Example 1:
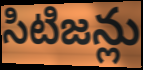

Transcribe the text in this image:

సిటిజన్లు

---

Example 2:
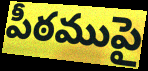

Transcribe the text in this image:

పీఠముపై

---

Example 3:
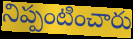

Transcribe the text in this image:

నిప్పంటించారు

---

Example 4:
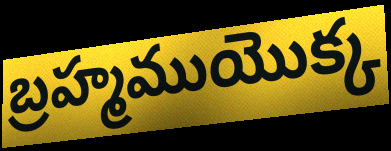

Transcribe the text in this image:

బ్రహ్మముయొక్క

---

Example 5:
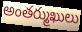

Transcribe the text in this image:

అంతర్ముఖులు